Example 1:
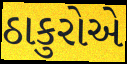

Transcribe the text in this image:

ઠાકુરોએ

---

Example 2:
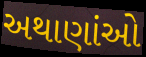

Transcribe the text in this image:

અથાણાંઓ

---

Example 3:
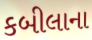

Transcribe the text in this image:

કબીલાના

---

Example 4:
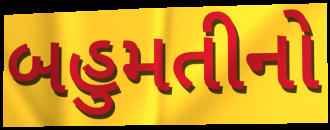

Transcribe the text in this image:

બહુમતીનો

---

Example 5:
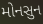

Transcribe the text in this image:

મોનસુન